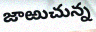
జాఱుచున్న